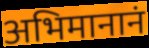
अभिमानानं